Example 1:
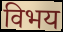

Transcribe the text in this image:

विभय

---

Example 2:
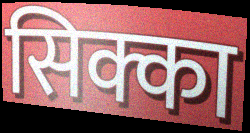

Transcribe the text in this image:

सिक्‍का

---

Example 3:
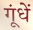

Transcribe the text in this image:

गूंधें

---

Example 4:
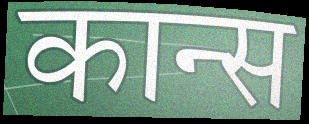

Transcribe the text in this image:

कान्स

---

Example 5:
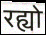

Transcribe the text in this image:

रह्यो